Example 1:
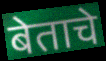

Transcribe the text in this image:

बेताचे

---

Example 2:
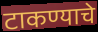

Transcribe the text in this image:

टाकण्याचे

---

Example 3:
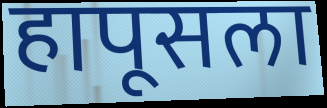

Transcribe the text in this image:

हापूसला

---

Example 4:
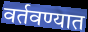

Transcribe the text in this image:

वर्तवण्यात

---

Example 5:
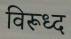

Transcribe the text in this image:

विरूध्द